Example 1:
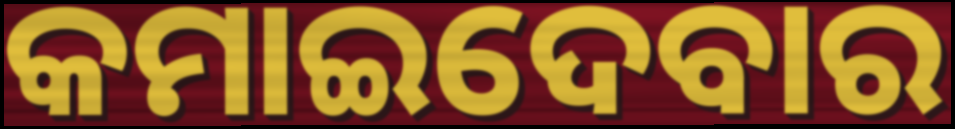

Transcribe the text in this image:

କମାଇଦେବାର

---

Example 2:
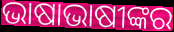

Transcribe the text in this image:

ଭାଷାଭାଷୀଙ୍କର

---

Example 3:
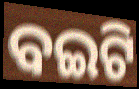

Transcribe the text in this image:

ବଇଟି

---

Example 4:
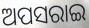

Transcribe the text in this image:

ଅପସରାଇ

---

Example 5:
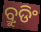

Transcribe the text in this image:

ବ୍ରୁଡିଂ